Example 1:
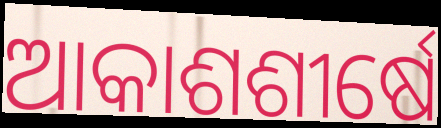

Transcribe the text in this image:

ଆକାଶଶୀର୍ଷେ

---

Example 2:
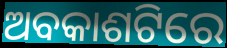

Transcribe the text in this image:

ଅବକାଶଟିରେ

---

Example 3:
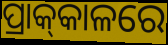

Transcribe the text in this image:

ପ୍ରାକ୍‌କାଳରେ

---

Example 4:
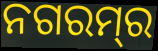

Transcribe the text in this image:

ନଗରମ୍‌ର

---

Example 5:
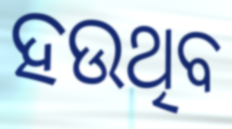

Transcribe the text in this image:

ହଉଥିବ